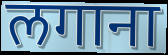
लगाना